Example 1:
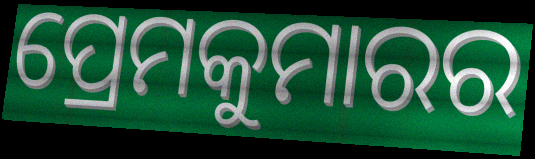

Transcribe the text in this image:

ପ୍ରେମକୁମାରର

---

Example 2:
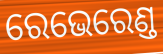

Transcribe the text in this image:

ରେଭେରେଣ୍ଡ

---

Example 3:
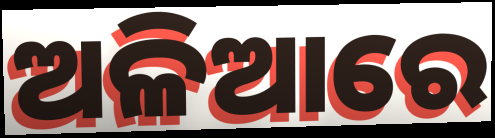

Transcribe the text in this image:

ଅଳିଆରେ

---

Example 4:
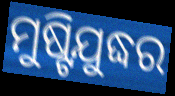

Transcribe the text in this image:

ମୁଷ୍ଟିଯୁଦ୍ଧର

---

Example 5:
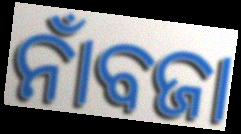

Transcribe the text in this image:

ନାଁବଜା